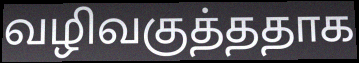
வழிவகுத்ததாக